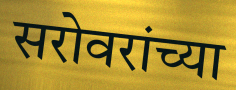
सरोवरांच्या